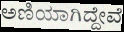
ಅಣಿಯಾಗಿದ್ದೇವೆ